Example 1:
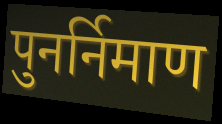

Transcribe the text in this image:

पुनर्निमाण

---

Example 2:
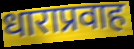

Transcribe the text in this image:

धाराप्रवाह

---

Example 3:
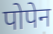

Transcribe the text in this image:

पोपेन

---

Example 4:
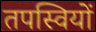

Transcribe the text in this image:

तपस्वियों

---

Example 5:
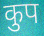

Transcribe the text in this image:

कुप